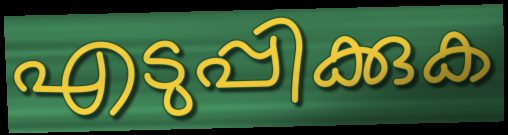
എടുപ്പിക്കുക